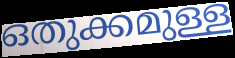
ഒതുക്കമുള്ള